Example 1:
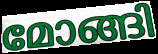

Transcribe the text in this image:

മോങ്ങി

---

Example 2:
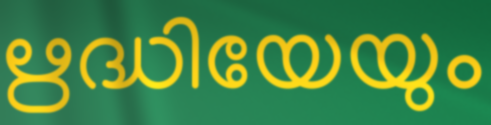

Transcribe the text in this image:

ഋദ്ധിയേയും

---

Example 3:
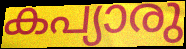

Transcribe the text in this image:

കപ്യാരു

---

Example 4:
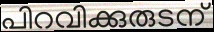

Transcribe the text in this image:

പിറവിക്കുരുടന്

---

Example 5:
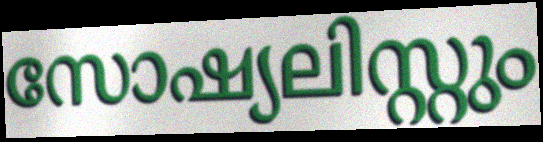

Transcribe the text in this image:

സോഷ്യലിസ്റ്റും